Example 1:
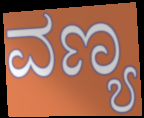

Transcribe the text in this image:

ವಣ್ಯ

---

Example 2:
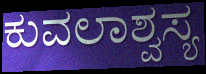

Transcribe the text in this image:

ಕುವಲಾಶ್ವಸ್ಯ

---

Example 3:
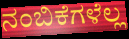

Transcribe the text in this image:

ನಂಬಿಕೆಗಳೆಲ್ಲ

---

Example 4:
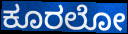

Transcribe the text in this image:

ಕೂರಲೋ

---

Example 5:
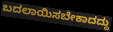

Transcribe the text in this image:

ಬದಲಾಯಿಸಬೇಕಾದದ್ದು